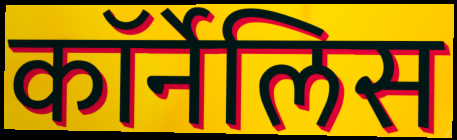
कॉर्नेलिस